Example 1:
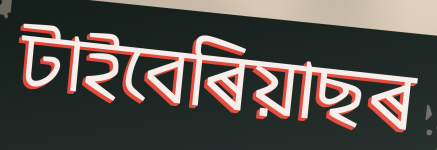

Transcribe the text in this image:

টাইবেৰিয়াছৰ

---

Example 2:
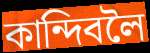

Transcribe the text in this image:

কান্দিবলৈ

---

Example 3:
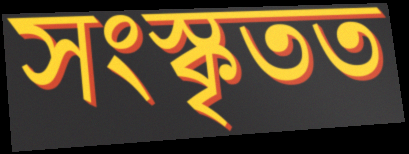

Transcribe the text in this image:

সংস্কৃতত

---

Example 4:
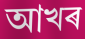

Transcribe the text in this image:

আখৰ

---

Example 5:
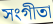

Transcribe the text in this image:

সংগীতা